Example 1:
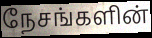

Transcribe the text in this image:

நேசங்களின்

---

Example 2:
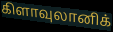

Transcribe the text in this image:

கிளாவுலானிக்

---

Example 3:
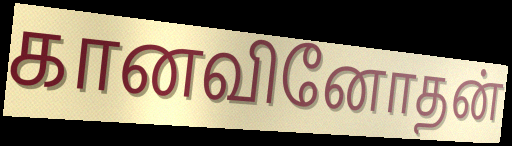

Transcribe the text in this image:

கானவினோதன்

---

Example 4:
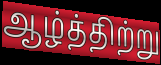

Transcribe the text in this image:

ஆழ்த்திற்று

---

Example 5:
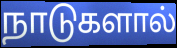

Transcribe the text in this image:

நாடுகளால்